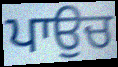
ਪਾਉਚ